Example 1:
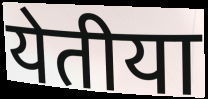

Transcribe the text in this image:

येतीया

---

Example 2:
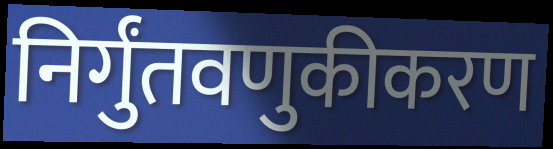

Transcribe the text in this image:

निर्गुंतवणुकीकरण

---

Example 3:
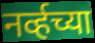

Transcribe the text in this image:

नर्व्हच्या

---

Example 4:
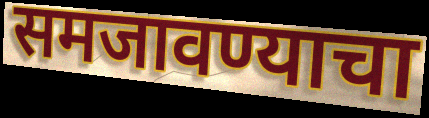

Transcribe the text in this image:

समजावण्याचा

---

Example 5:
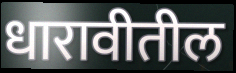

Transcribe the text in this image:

धारावीतील